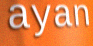
ayan